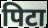
पिटा